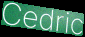
Cedric